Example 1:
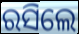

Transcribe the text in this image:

ରସିଲେ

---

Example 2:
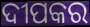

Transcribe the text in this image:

ଦୀପକର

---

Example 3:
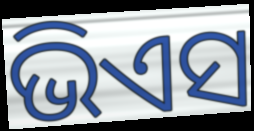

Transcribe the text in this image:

ଭିଏସ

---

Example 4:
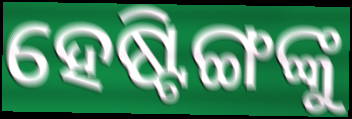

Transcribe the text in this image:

ହେଷ୍ଟିଙ୍ଗଙ୍କୁ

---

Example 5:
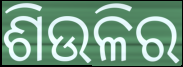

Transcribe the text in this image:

ଶିଉଳିର